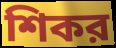
শিকর